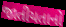
જાતીયતાનો